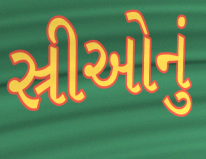
સ્રીઓનું